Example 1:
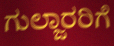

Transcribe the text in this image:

ಗುಲ್ಜಾರರಿಗೆ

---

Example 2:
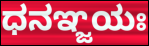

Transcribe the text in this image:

ಧನಞ್ಜಯಃ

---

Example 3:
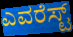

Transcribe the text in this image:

ಎವರೆಸ್ಟ್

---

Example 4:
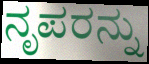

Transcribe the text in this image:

ನೃಪರನ್ನು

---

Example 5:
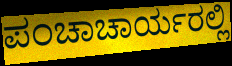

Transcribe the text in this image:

ಪಂಚಾಚಾರ್ಯರಲ್ಲಿ